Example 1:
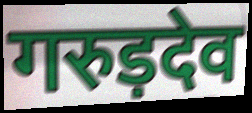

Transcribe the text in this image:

गरुड़देव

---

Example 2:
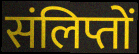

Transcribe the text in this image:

संलिप्तों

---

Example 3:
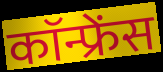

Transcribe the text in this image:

कॉन्फ्रेंस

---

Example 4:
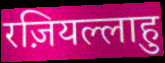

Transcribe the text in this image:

रज़ियल्लाहु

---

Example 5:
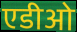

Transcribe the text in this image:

एडीओ